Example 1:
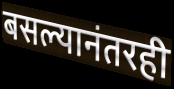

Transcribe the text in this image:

बसल्यानंतरही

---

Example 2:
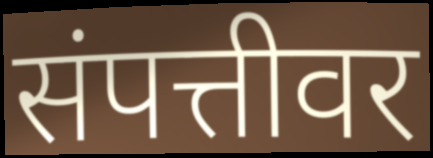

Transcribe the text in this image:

संपत्तीवर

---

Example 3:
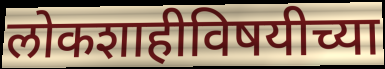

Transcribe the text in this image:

लोकशाहीविषयीच्या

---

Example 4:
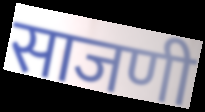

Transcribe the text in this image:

साजणी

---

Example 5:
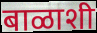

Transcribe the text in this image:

बाळाशी